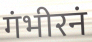
गंभीरनं